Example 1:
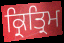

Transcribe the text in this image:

ਕ੍ਰਿਤ੍ਰਿਮ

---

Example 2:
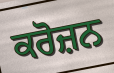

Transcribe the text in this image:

ਕਰੋਜ਼ਨ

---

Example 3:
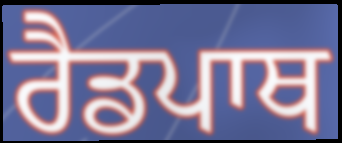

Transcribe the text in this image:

ਰੈਡਪਾਥ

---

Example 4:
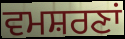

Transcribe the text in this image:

ਵਮਸ਼ਰਣਾਂ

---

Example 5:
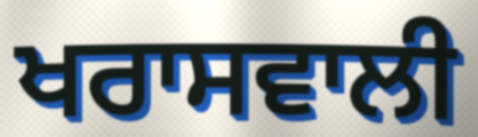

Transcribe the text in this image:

ਖਰਾਸਵਾਲੀ